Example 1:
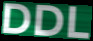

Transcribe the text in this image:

DDL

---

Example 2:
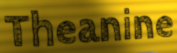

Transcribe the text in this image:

Theanine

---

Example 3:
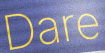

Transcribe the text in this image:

Dare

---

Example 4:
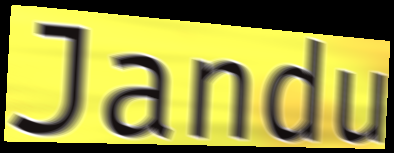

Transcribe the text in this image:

Jandu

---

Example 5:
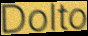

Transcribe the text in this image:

Dolto